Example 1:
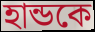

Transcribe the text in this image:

হান্ডকে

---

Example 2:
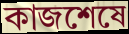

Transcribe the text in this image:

কাজশেষে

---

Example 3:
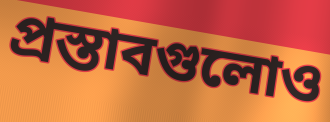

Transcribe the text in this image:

প্রস্তাবগুলোও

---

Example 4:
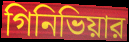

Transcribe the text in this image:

গিনিভিয়ার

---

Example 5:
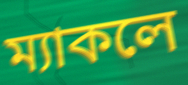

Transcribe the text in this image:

ম্যাকলে